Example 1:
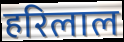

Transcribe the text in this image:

हरिलाल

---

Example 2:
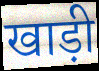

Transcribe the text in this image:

खाड़ी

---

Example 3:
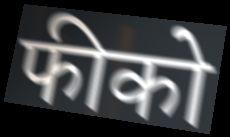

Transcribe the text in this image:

फीको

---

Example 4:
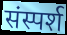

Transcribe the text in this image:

संस्पर्श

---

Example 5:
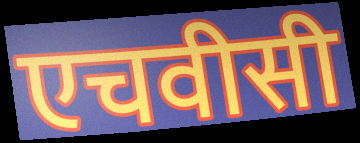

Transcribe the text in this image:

एचवीसी